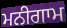
ਮਨੀਗਾਮ